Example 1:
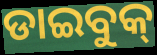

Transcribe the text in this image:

ଡାଇବୁକ୍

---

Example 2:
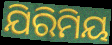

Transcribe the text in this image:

ଯିରିମିୟ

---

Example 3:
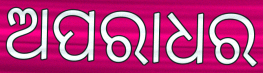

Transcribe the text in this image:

ଅପରାଧର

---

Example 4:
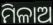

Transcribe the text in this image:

ମିଳାଅ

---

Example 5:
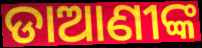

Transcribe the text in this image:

ଡାଆଣୀଙ୍କ